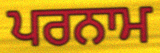
ਪਰਨਾਮ